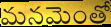
మనమెంతో